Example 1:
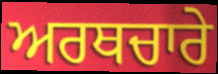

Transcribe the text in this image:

ਅਰਥਚਾਰੇ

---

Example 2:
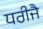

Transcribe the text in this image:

ਧਰੀਜੈ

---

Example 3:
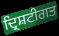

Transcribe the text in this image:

ਦ੍ਰਿਸ਼ਟੀਗਤ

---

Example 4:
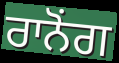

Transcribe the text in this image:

ਰਾਨੋਂਗ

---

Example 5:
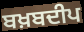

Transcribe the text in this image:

ਬਖ਼ਬਦੀਪ